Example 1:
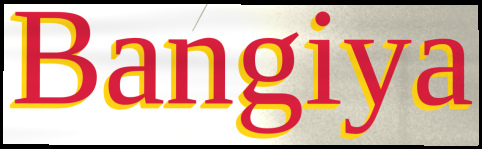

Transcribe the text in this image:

Bangiya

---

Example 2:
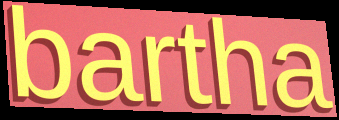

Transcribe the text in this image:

bartha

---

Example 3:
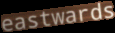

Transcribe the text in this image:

eastwards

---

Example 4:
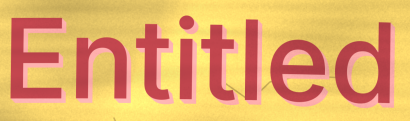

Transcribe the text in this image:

Entitled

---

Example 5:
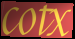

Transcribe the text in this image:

cotx